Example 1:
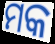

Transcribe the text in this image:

ମକ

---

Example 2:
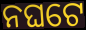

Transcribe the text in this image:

ନଘଟେ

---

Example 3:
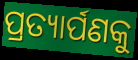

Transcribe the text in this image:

ପ୍ରତ୍ୟାର୍ପଣକୁ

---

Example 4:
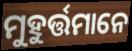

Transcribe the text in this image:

ମୁହୁର୍ତ୍ତମାନେ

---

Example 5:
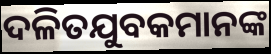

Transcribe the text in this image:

ଦଳିତଯୁବକମାନଙ୍କ